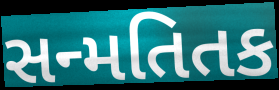
સન્મતિતક